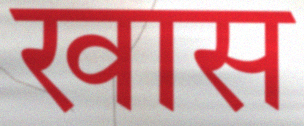
खास